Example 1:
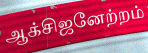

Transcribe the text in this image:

ஆக்சிஜனேற்றம்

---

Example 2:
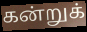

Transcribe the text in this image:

கன்றுக்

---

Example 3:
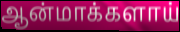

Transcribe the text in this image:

ஆன்மாக்களாய்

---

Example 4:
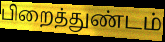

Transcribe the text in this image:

பிறைத்துண்டம்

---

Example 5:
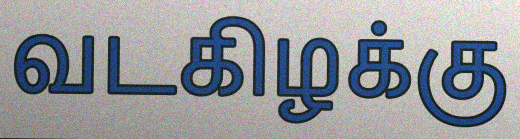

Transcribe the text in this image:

வடகிழக்கு